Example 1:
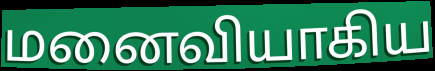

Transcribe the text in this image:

மனைவியாகிய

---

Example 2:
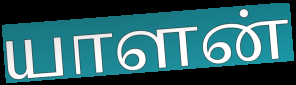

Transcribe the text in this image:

யாளன்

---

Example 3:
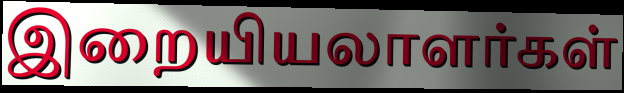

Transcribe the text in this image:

இறையியலாளர்கள்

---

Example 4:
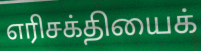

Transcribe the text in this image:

எரிசக்தியைக்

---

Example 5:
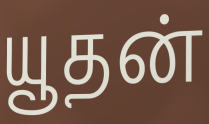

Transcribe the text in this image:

யூதன்